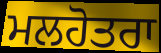
ਮਲਹੋਤਰਾ